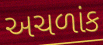
અચળાંક